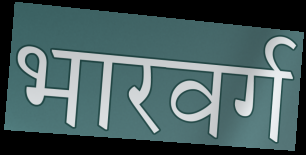
भारवर्ग